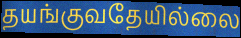
தயங்குவதேயில்லை